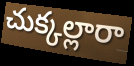
చుక్కల్లారా